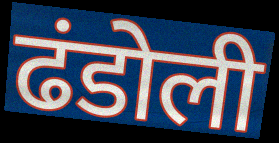
ढंडोली